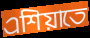
এশিয়াতে